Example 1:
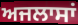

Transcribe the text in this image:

ਅਜਲਾਸਾਂ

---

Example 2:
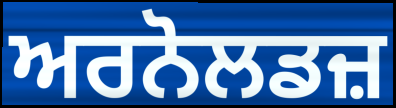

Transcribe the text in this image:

ਅਰਨੋਲਡਜ਼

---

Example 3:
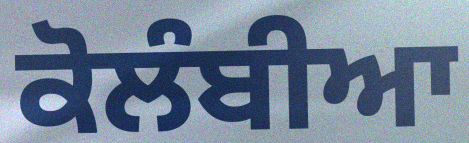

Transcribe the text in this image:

ਕੋਲੰਬੀਆ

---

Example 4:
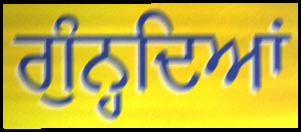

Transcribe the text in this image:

ਗੁੰਨ੍ਹਦਿਆਂ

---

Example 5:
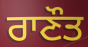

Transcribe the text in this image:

ਰਾਣੌਤ